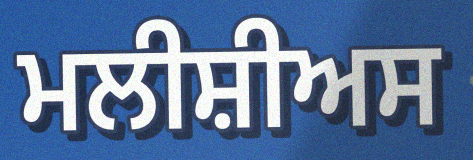
ਮਲੀਸ਼ੀਅਸ